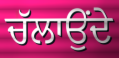
ਚੱਲਾਉਂਦੇ